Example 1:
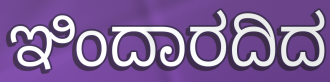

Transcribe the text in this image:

ಇಿಂದಾರದಿದ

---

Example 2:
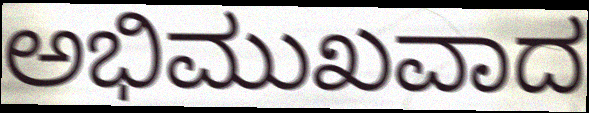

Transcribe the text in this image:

ಅಭಿಮುಖವಾದ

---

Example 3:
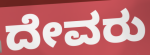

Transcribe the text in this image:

ದೇವರು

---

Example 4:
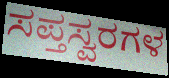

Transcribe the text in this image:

ಸಪ್ತಸ್ವರಗಳ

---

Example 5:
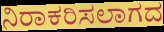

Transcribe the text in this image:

ನಿರಾಕರಿಸಲಾಗದ